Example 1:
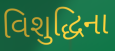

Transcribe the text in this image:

વિશુદ્ધિના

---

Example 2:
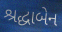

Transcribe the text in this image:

શ્રદ્ધાબેન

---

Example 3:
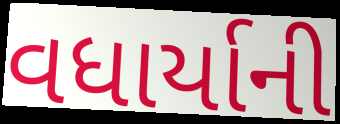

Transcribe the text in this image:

વધાર્યાની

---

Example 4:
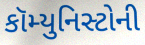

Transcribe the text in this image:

કૉમ્યુનિસ્ટોની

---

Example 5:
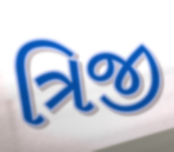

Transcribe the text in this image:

ત્રિજી